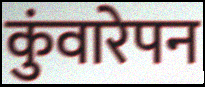
कुंवारेपन